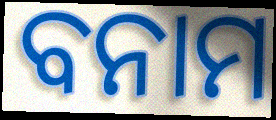
ବନାମ